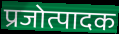
प्रजोत्पादक